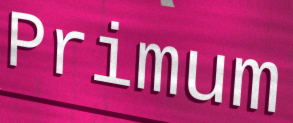
Primum